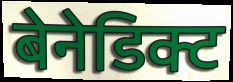
बेनेडिक्ट